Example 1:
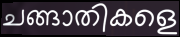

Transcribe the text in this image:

ചങ്ങാതികളെ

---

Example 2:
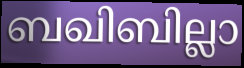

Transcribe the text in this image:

ബഖിബില്ലാ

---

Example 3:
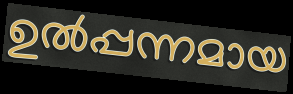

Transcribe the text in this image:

ഉൽപ്പന്നമായ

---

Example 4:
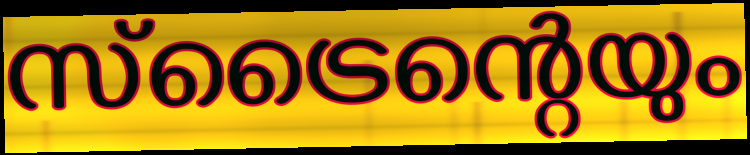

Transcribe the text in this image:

സ്ട്രൈന്റെയും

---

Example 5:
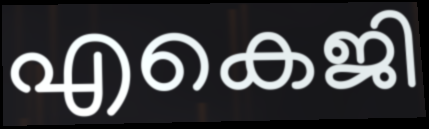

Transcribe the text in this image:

എകെജി